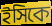
ইসিকে